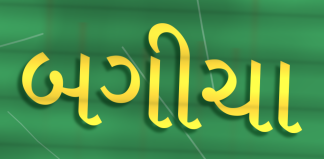
બગીચા